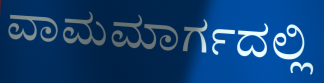
ವಾಮಮಾರ್ಗದಲ್ಲಿ